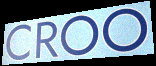
CROO